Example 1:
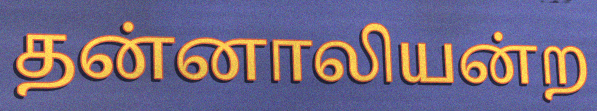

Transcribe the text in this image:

தன்னாலியன்ற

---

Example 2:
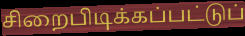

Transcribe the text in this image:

சிறைபிடிக்கப்பட்டுப்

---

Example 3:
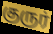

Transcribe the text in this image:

குருர்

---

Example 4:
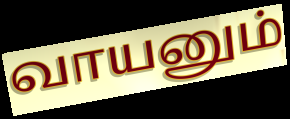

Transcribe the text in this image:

வாயனும்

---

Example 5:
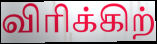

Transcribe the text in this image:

விரிக்கிற்